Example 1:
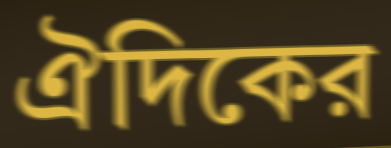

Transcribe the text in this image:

ঐদিকের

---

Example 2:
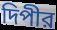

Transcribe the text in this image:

দিপীর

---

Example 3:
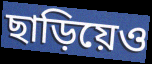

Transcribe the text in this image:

ছাড়িয়েও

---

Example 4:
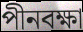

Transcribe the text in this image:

পীনবক্ষা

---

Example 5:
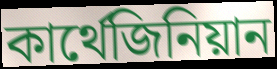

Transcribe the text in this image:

কার্থেজিনিয়ান